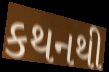
કથનથી